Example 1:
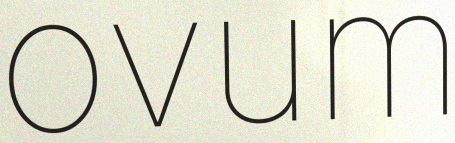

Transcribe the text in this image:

ovum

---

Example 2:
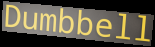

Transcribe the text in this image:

Dumbbell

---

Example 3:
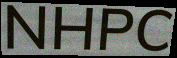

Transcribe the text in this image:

NHPC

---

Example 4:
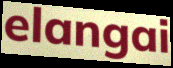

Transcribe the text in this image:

elangai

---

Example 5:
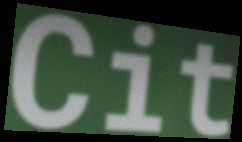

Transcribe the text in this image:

Cit